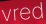
vred